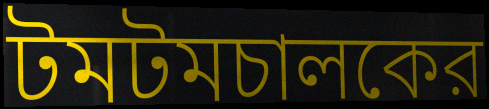
টমটমচালকের